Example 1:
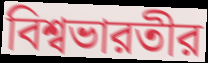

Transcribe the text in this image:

বিশ্বভারতীর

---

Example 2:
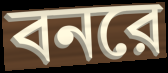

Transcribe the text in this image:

বনরে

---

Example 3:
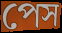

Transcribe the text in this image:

পেস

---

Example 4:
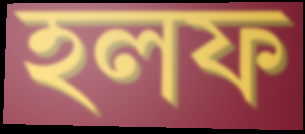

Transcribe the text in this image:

হলফ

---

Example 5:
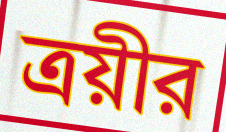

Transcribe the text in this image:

ত্রয়ীর